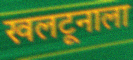
खलटूनाला